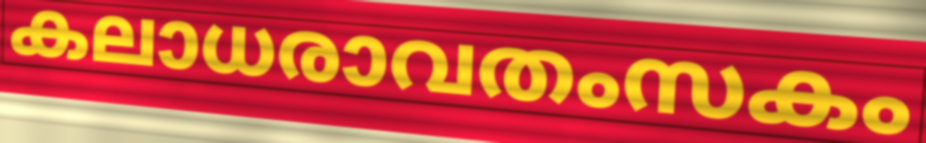
കലാധരാവതംസകം